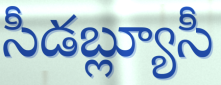
సీడబ్ల్యూసీ